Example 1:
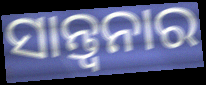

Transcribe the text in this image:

ସାନ୍ତ୍ବନାର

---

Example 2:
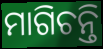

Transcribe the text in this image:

ମାଗିଚନ୍ତି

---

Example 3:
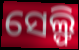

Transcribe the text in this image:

ସେଲ୍ଫି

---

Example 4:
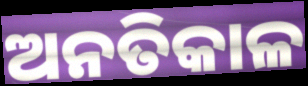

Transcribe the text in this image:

ଅନତିକାଳ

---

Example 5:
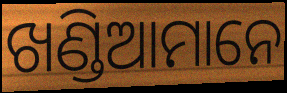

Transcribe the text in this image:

ଖଣ୍ଡିଆମାନେ